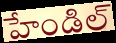
హేండిల్